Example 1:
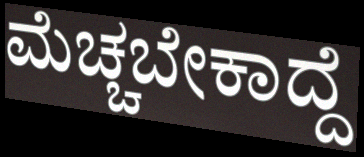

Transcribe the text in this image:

ಮೆಚ್ಚಬೇಕಾದ್ದೆ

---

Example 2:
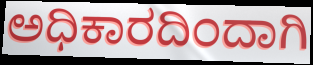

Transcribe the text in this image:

ಅಧಿಕಾರದಿಂದಾಗಿ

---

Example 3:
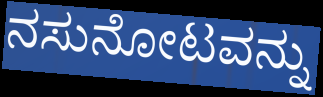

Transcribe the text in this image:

ನಸುನೋಟವನ್ನು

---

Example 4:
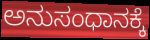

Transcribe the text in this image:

ಅನುಸಂಧಾನಕ್ಕೆ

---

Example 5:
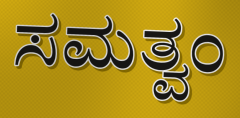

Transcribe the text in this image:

ಸಮತ್ವಂ